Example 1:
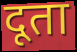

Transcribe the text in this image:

दूता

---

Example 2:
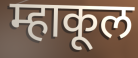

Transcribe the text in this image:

म्हाकूल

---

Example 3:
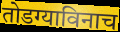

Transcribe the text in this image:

तोडग्याविनाच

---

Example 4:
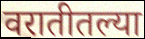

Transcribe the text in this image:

वरातीतल्या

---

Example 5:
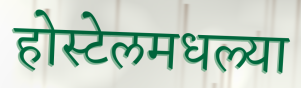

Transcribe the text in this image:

होस्टेलमधल्या